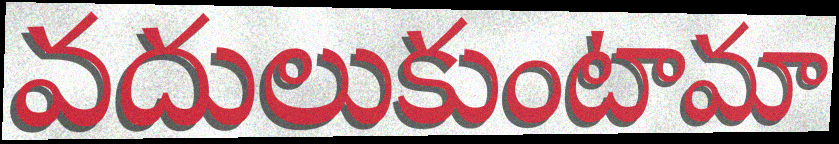
వదులుకుంటామా